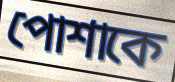
পোশাকে